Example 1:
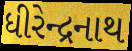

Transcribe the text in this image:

ધીરેન્દ્રનાથ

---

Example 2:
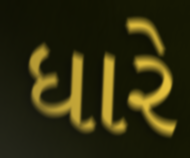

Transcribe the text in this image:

ધારે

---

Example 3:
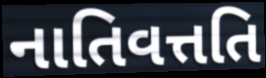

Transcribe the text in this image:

નાતિવત્તતિ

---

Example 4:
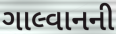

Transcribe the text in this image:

ગાલ્વાનની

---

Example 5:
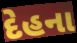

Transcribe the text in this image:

દેહના